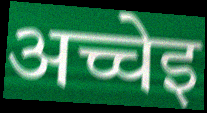
अच्चेइ